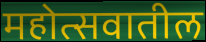
महोत्सवातील